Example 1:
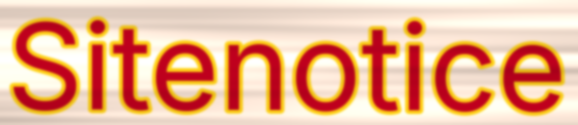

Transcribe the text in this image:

Sitenotice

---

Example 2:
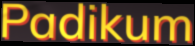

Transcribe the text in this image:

Padikum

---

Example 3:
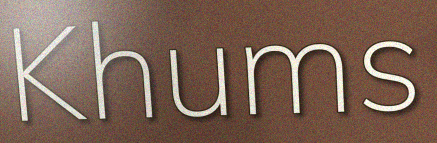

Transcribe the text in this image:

Khums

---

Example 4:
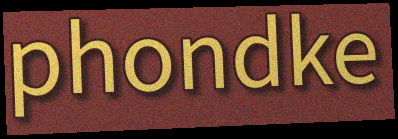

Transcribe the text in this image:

phondke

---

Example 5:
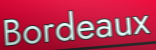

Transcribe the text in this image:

Bordeaux